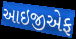
આઇજીએફ